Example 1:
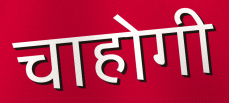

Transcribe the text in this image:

चाहोगी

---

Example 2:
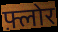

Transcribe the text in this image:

फ़्लोर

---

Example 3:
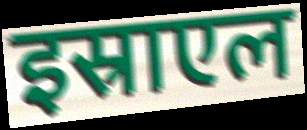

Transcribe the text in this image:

इस्राएल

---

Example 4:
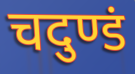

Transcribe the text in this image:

चदुण्डं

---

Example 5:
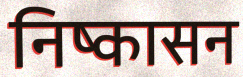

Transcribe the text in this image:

निष्कासन